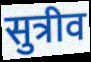
सुत्रीव